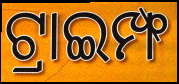
ଟ୍ରାଇମ୍ଫ